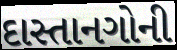
દાસ્તાનગોની